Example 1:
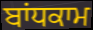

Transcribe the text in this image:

ਬਾਂਧਕਾਮ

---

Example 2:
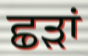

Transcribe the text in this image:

ਛੜਾਂ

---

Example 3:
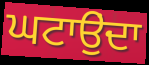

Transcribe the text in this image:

ਘਟਾਉੁਂਦਾ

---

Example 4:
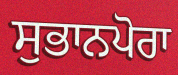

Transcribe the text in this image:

ਸੁਭਾਨਪੋਰਾ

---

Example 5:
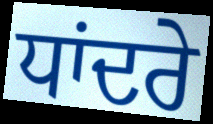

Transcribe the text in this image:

ਧਾਂਦਰੇ